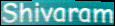
Shivaram